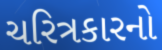
ચરિત્રકારનો